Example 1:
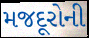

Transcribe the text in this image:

મજદૂરોની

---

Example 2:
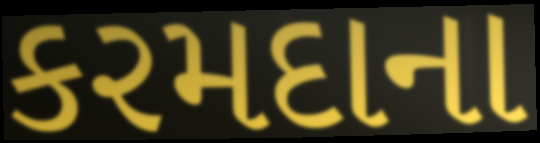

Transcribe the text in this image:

કરમદાના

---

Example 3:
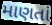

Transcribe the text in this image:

માણતાં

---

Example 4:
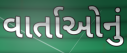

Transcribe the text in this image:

વાર્તાઓનું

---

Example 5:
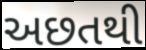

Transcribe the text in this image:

અછતથી